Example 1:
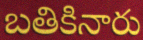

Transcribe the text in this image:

బతికినారు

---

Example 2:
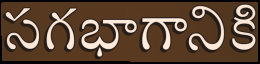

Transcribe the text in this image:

సగభాగానికి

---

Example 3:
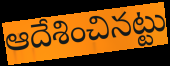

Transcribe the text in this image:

ఆదేశించినట్టు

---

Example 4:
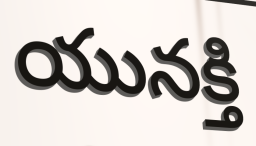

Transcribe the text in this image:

యునక్తి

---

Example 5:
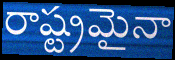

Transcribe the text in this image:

రాష్ట్రమైనా